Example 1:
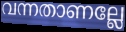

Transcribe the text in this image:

വന്നതാണല്ലേ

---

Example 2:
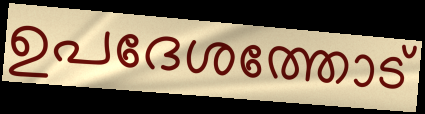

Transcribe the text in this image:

ഉപദേശത്തോട്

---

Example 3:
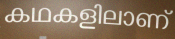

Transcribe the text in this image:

കഥകളിലാണ്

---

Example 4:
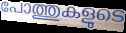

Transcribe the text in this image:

പോത്തുകളുടെ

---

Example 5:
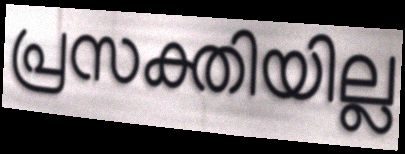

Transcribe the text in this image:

പ്രസക്തിയില്ല